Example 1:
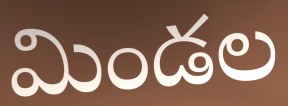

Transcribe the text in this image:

మిండల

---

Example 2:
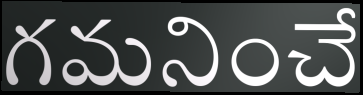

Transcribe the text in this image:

గమనించే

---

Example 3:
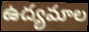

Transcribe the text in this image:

ఉద్యమాల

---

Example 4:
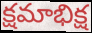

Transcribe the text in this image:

క్షమాభిక్ష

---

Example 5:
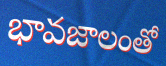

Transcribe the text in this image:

భావజాలంతో